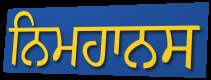
ਨਿਮਹਾਨਸ